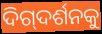
ଦିଗ୍‌ଦର୍ଶନକୁ